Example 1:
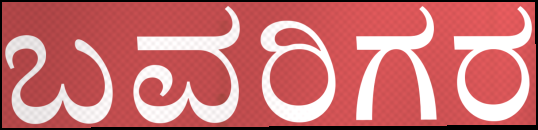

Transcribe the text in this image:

ಬವರಿಗರ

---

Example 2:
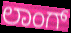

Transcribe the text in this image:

ಲಾಂಗ್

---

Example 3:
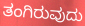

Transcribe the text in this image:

ತಂಗಿರುವುದು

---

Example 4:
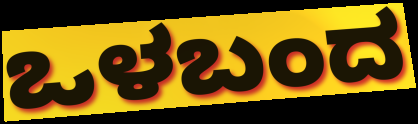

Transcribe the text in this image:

ಒಳಬಂದ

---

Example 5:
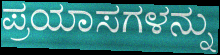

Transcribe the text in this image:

ಪ್ರಯಾಸಗಳನ್ನು